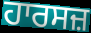
ਹਾਰਸਜ਼